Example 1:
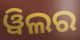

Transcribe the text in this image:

ୱିଲର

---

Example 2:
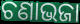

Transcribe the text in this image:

ଚଣାଭଜା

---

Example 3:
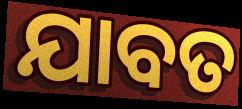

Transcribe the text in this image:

ଯାବତ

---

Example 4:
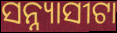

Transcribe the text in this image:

ସନ୍ନ୍ୟାସୀଟା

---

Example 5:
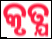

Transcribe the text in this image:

କୃତ୍ଯ